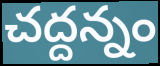
చద్దన్నం